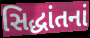
સિદ્ધાંતનાં